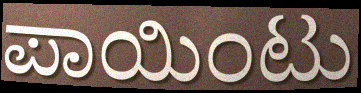
ಪಾಯಿಂಟು